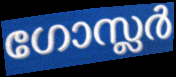
ഗോസ്ലർ